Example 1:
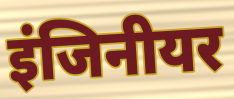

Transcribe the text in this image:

इंजिनीयर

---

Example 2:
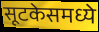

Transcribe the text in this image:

सूटकेसमध्ये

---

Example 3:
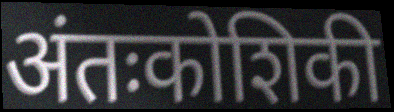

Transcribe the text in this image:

अंतःकोशिकी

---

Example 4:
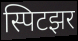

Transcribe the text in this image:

स्पिटझर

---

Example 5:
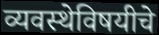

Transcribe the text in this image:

व्यवस्थेविषयीचे